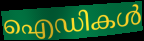
ഐഡികൾ